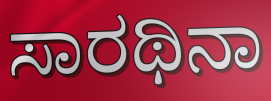
ಸಾರಥಿನಾ